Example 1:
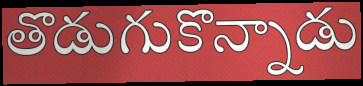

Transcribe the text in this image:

తొడుగుకొన్నాడు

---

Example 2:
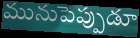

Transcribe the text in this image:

మునుపెప్పుడూ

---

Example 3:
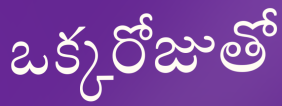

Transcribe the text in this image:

ఒక్కరోజుతో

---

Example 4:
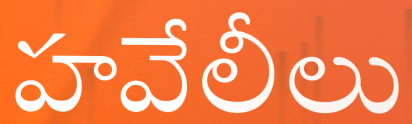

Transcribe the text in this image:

హవేలీలు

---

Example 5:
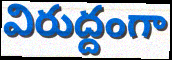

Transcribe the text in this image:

విరుద్దంగా